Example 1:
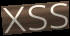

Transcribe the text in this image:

xss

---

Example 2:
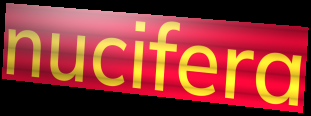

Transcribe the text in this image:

nucifera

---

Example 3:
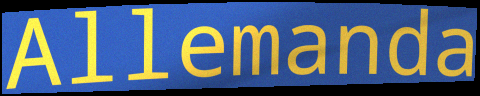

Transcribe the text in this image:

Allemanda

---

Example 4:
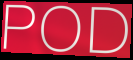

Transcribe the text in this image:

POD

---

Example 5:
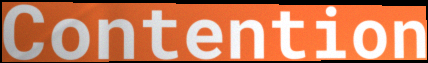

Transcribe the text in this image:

Contention